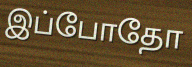
இப்போதோ